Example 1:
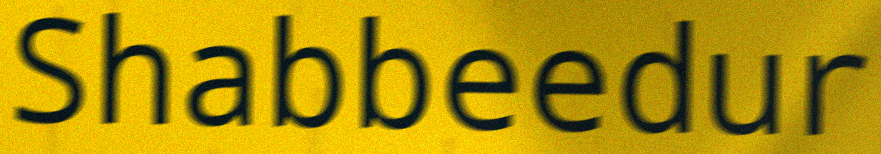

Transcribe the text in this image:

Shabbeedur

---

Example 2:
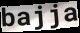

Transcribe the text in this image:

bajja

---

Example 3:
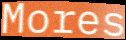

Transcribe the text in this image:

Mores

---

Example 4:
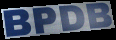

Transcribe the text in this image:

BPDB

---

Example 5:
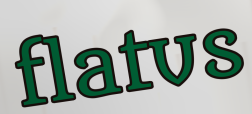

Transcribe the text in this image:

flatus